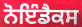
ਨੋਇੰਡੈਕਸ